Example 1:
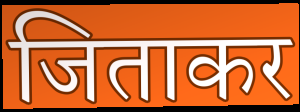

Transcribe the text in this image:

जिताकर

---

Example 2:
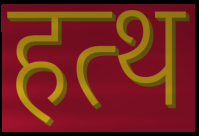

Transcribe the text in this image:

हत्थ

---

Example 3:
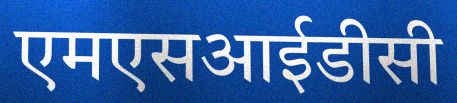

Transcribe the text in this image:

एमएसआईडीसी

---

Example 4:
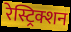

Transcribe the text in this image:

रेस्ट्रिक्शन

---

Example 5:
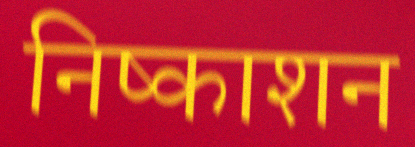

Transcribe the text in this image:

निष्काशन